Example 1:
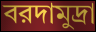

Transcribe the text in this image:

বরদামুদ্রা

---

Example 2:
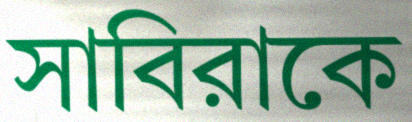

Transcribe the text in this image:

সাবিরাকে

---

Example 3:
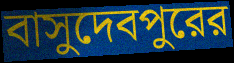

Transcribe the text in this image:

বাসুদেবপুরের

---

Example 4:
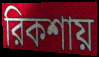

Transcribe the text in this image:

রিকশায়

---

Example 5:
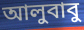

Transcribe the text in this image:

আলুবাবু